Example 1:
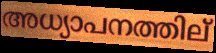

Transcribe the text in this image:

അധ്യാപനത്തില്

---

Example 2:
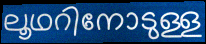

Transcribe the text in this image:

ലൂഥറിനോടുള്ള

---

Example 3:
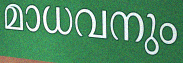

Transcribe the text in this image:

മാധവനും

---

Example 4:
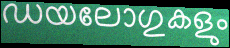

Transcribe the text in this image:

ഡയലോഗുകളും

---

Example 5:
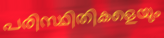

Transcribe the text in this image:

പരിസ്ഥിതികളെയും